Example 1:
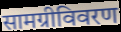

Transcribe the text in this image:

सामग्रीविवरण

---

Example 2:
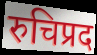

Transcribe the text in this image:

रुचिप्रद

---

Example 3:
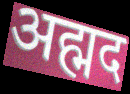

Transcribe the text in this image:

अह्मद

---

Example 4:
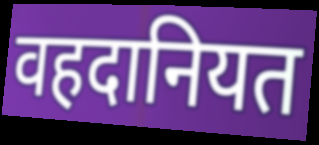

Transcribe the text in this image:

वहदानियत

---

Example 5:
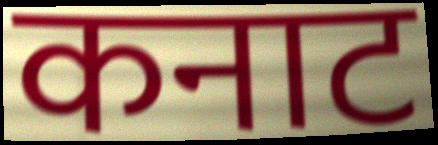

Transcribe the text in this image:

कनाट